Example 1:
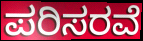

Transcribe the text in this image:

ಪರಿಸರವೆ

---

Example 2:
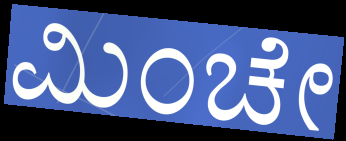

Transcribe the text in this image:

ಮಿಂಚೇ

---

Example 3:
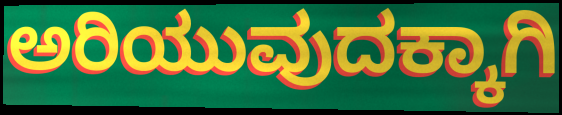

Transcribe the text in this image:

ಅರಿಯುವುದಕ್ಕಾಗಿ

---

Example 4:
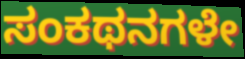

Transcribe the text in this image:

ಸಂಕಥನಗಳೇ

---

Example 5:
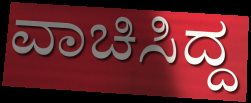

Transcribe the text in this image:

ವಾಚಿಸಿದ್ದ